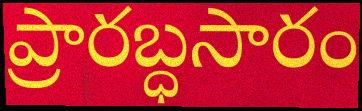
ప్రారబ్ధసారం